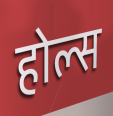
होल्स